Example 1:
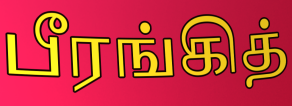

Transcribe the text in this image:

பீரங்கித்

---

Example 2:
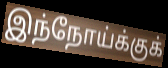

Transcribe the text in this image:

இந்நோய்க்குக்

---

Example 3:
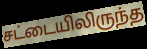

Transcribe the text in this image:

சட்டையிலிருந்த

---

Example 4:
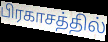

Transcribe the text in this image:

பிரகாசத்தில்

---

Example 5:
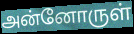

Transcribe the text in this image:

அன்னோருள்